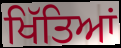
ਖਿੱਤਿਆਂ